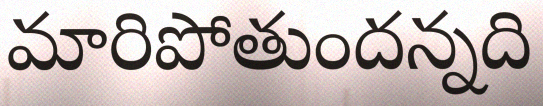
మారిపోతుందన్నది